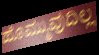
ಹೊಮ್ಮುವುದಿಲ್ಲ